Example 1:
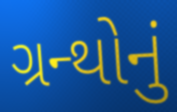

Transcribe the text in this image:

ગ્રન્થોનું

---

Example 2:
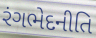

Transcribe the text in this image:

રંગભેદનીતિ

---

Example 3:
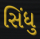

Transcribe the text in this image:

સિંધુ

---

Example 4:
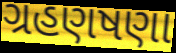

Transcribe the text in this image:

ગ્રહણષણા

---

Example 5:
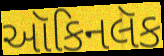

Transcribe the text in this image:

ઑકિનલૅક